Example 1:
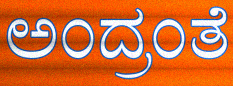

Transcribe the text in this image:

ಅಂದ್ರಂತೆ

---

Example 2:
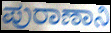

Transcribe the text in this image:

ಪುರಾಣಾನಿ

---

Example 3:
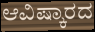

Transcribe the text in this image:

ಆವಿಷ್ಕಾರದ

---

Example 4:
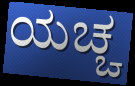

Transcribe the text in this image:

ಯಚ್ಚ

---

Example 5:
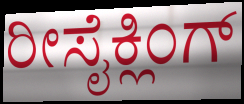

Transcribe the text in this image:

ರೀಸೈಕ್ಲಿಂಗ್